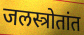
जलस्त्रोतांत